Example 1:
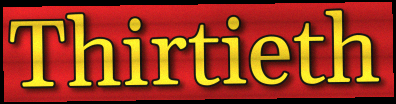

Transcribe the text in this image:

Thirtieth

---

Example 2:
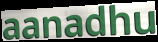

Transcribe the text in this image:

aanadhu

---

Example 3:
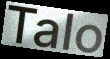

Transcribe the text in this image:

Talo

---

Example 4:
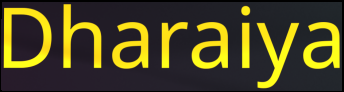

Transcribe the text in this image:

Dharaiya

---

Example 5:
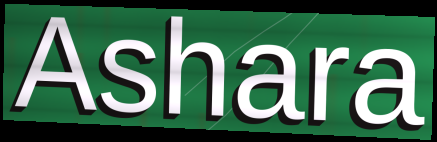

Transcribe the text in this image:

Ashara